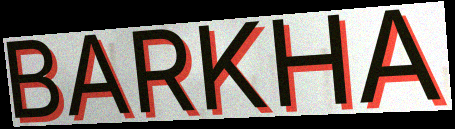
BARKHA